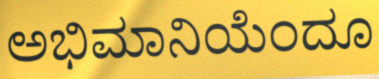
ಅಭಿಮಾನಿಯೆಂದೂ